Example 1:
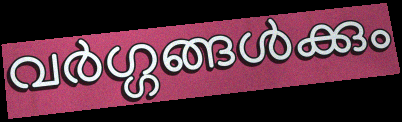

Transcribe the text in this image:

വർഗ്ഗങ്ങൾക്കും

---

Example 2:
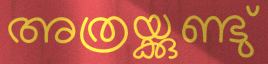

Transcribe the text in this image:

അത്രയ്ക്കുണ്ടു്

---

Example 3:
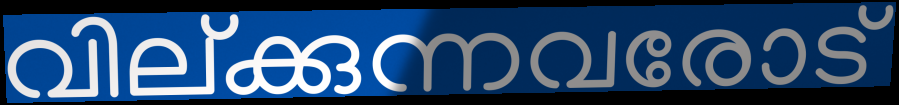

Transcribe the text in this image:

വില്ക്കുന്നവരോട്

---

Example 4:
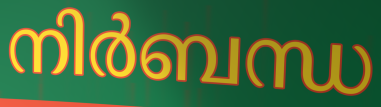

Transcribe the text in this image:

നിർബന്ധ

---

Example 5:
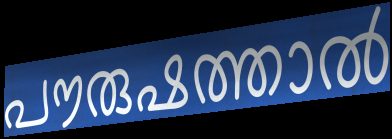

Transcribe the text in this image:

പൗരുഷത്താൽ